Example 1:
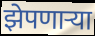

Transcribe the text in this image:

झेपणार्‍या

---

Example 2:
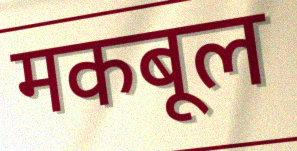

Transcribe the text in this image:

मकबूल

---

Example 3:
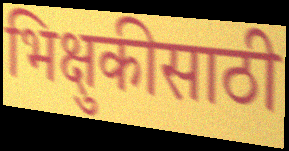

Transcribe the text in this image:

भिक्षुकीसाठी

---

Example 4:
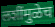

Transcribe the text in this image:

लशींमुळेच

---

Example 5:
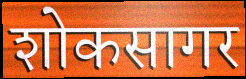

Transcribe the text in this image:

शोकसागर